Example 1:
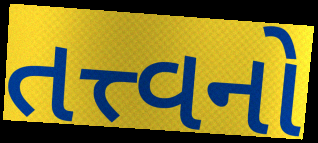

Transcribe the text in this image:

તત્ત્વનો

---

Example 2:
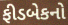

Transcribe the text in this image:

ફીડબેકનો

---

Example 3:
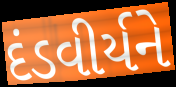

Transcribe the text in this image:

દંડવીર્યને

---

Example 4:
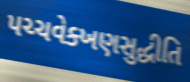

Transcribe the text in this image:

પચ્ચવેક્ખણસુદ્ધીતિ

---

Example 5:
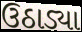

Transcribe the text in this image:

ઉઠાડ્યા